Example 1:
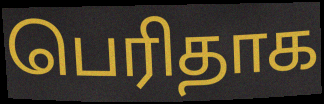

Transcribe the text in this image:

பெரிதாக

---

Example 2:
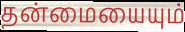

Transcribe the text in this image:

தன்மையையும்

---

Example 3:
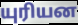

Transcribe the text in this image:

யுரியன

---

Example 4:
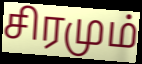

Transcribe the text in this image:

சிரமும்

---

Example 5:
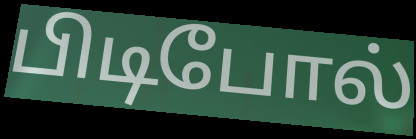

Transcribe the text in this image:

பிடிபோல்